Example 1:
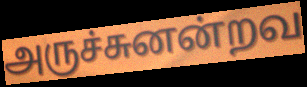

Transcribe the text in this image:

அருச்சுனன்றவ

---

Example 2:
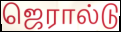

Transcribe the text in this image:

ஜெரால்டு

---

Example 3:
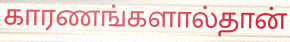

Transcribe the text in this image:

காரணங்களால்தான்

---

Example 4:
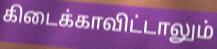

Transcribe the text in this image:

கிடைக்காவிட்டாலும்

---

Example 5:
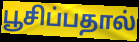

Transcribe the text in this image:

பூசிப்பதால்